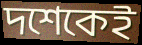
দশেকেই